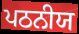
ਪਠਨੀਯ